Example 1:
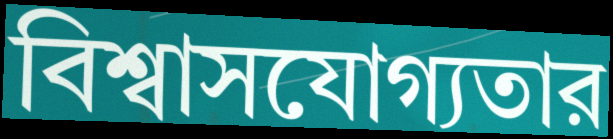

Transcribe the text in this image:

বিশ্বাসযোগ্যতার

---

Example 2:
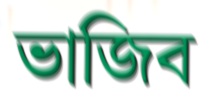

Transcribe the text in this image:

ভাজিব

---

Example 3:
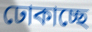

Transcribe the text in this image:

ঢোকাচ্ছে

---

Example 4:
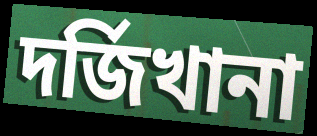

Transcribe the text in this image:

দর্জিখানা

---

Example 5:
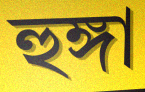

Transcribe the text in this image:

হুঙ্গা